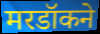
मरडॉकने